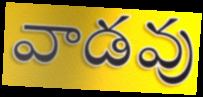
వాడవు